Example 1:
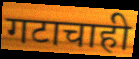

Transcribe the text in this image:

गटाचाही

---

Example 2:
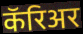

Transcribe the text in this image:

कॅरिअर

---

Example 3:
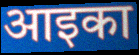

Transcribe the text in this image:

आइका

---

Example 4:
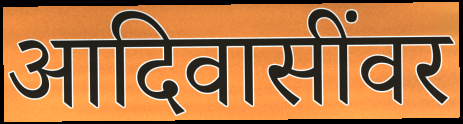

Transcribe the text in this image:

आदिवासींवर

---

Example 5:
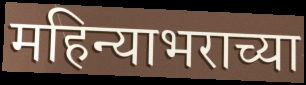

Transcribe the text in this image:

महिन्याभराच्या